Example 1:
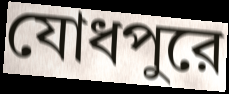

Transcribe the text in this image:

যোধপুরে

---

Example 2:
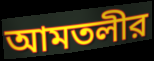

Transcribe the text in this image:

আমতলীর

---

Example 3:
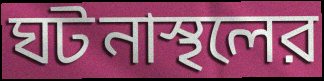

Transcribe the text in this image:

ঘটনাস্থলের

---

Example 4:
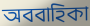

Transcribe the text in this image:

অববাহিকা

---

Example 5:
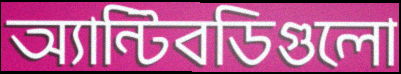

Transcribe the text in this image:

অ্যান্টিবডিগুলো